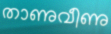
താണുവീണു